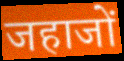
जहाजों